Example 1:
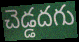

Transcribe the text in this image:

చెడ్డదగు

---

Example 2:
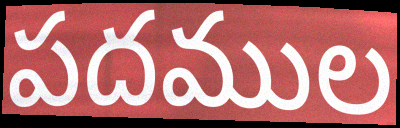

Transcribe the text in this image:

పదముల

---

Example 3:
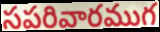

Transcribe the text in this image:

సపరివారముగ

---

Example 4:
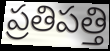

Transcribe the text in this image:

ప్రతిపత్తి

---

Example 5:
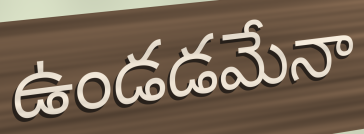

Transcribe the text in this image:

ఉండడమేనా